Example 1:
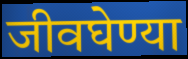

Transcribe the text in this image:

जीवघेण्या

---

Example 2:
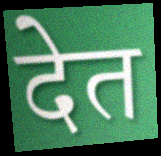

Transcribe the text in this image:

देत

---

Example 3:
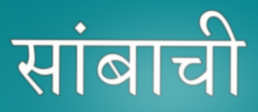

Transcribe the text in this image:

सांबाची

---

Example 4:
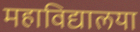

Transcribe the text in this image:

महाविद्यालया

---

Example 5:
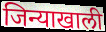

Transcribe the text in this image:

जिन्याखाली